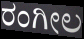
ರಂಗೀಲ